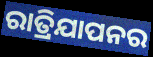
ରାତ୍ରିଯାପନର